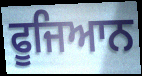
ਫੂਜਿਆਨ